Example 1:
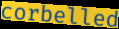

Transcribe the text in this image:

corbelled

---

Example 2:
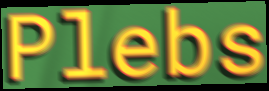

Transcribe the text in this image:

Plebs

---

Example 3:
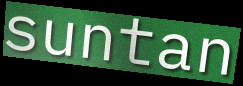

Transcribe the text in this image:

suntan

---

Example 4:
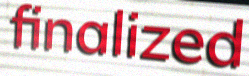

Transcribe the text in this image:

finalized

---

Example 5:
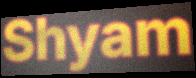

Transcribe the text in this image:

Shyam